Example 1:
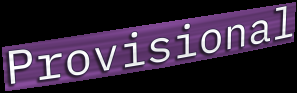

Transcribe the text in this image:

Provisional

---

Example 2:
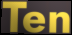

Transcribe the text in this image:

Ten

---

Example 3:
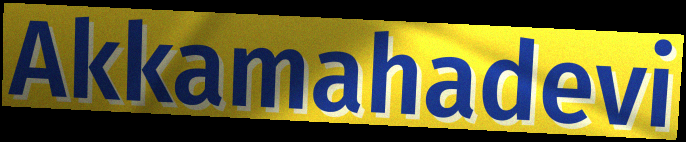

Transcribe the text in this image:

Akkamahadevi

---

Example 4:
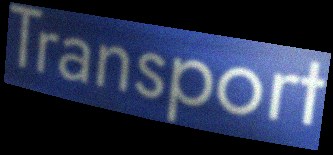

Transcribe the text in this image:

Transport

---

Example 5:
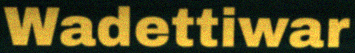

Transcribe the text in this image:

Wadettiwar